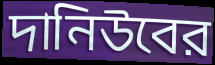
দানিউবের